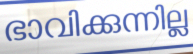
ഭാവിക്കുന്നില്ല